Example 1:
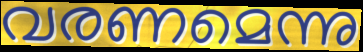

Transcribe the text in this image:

വരണമെന്നു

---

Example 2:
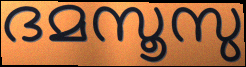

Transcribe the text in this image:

ദമസൂസു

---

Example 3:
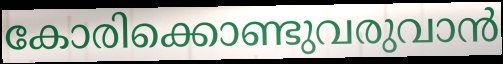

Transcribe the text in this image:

കോരിക്കൊണ്ടുവരുവാൻ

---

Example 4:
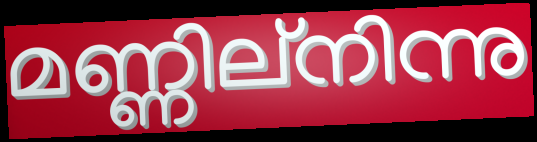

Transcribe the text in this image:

മണ്ണില്നിന്നു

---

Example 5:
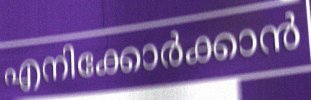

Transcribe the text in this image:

എനിക്കോർക്കാൻ